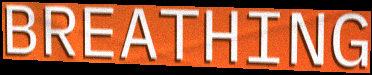
BREATHING